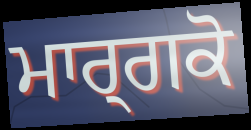
ਮਾਰ੍ਗਕੋ